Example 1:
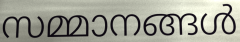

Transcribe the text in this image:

സമ്മാനങ്ങൾ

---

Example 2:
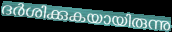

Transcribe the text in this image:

ദർശിക്കുകയായിരുന്നു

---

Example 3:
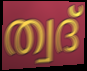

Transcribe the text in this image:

ത്വദ്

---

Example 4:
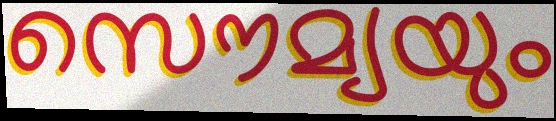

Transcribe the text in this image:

സൌമ്യയും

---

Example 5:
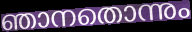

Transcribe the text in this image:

ഞാനതൊന്നും